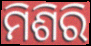
ମିଶିରି